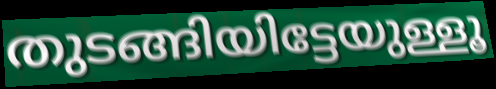
തുടങ്ങിയിട്ടേയുള്ളൂ